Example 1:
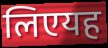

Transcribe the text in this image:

लिएयह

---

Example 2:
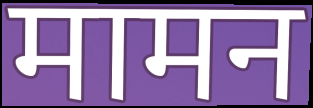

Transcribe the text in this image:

मामन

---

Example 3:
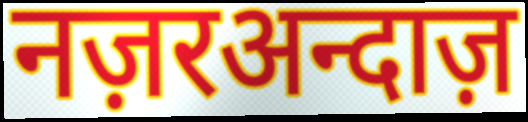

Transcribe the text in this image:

नज़रअन्दाज़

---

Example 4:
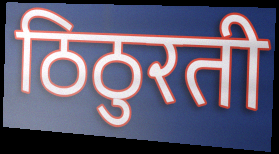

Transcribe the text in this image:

ठिठुरती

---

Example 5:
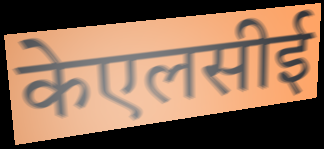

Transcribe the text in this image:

केएलसीई